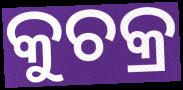
କୁଚକ୍ର